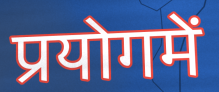
प्रयोगमें